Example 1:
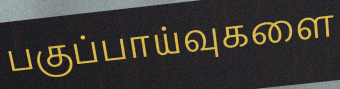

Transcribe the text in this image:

பகுப்பாய்வுகளை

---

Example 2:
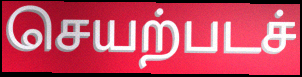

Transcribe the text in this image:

செயற்படச்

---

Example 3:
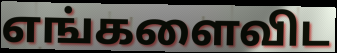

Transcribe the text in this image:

எங்களைவிட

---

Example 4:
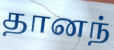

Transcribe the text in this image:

தானந்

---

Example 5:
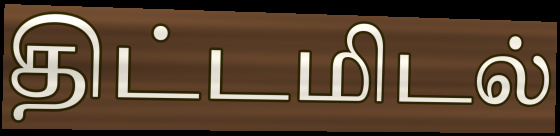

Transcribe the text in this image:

திட்டமிடல்